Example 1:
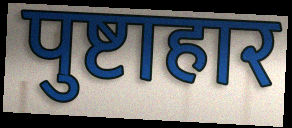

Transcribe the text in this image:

पुष्टाहार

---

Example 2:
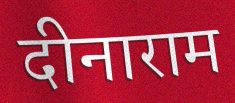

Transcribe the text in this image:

दीनाराम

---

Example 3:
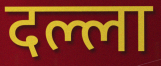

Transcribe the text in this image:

दल्ला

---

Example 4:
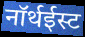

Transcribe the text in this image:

नॉर्थईस्ट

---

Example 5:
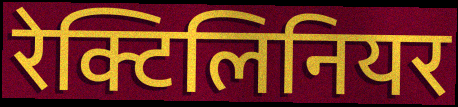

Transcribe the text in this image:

रेक्टिलिनियर